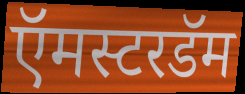
ऍमस्टरडॅम